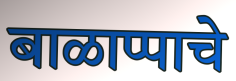
बाळाप्पाचे